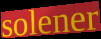
solener